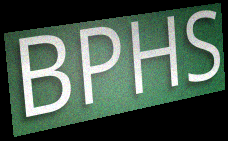
BPHS